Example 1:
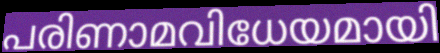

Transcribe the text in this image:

പരിണാമവിധേയമായി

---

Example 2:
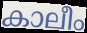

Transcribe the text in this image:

കാലീം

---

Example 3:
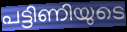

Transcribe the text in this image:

പട്ടിണിയുടെ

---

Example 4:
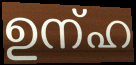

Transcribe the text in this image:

ഉന്ഹ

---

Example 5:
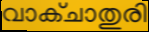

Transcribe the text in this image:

വാക്ചാതുരി